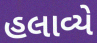
હલાવ્યે